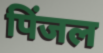
पिंजल